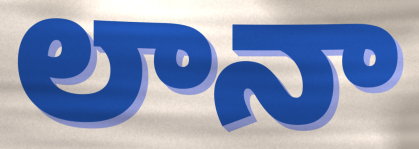
లానా